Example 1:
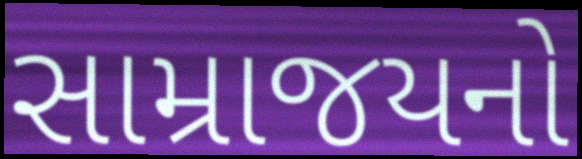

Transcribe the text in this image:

સામ્રાજયનો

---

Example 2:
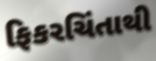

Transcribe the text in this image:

ફિકરચિંતાથી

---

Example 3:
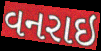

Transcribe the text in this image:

વનરાઇ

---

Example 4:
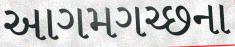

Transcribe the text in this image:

આગમગચ્છના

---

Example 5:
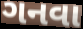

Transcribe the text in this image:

ગનવા